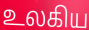
உலகிய